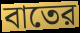
বাতের